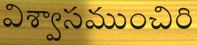
విశ్వాసముంచిరి